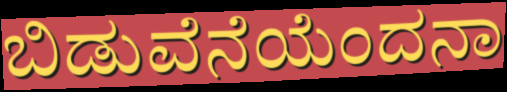
ಬಿಡುವೆನೆಯೆಂದನಾ